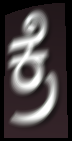
ಕ್ರೆ